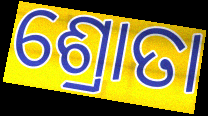
ଶ୍ରୋତା